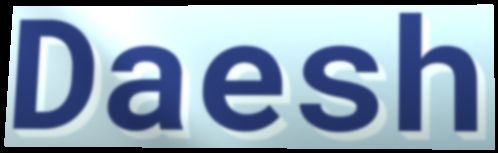
Daesh